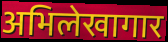
अभिलेखागार